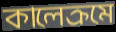
কালেক্রমে